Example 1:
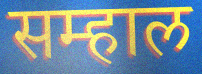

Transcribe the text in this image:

सम्हाल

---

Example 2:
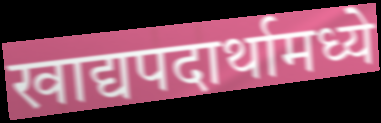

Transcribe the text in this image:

खाद्यपदार्थामध्ये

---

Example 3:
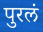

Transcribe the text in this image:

पुरलं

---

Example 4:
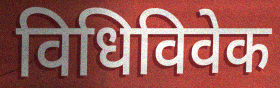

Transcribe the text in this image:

विधिविवेक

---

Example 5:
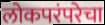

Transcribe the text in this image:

लोकपरंपरेचा